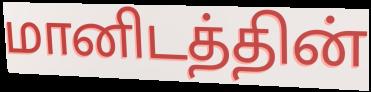
மானிடத்தின்